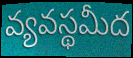
వ్యవస్థమీద